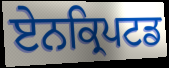
ਏਨਕ੍ਰਿਪਟਡ